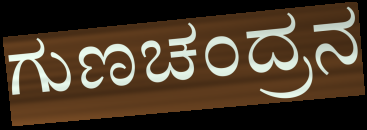
ಗುಣಚಂದ್ರನ